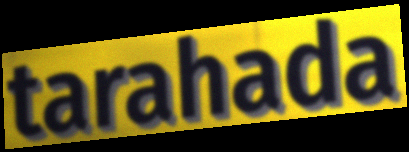
tarahada